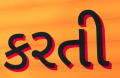
કરતી